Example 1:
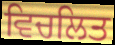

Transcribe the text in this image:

ਵਿਚਲਿਤ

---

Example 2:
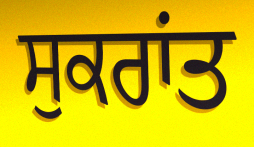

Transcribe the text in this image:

ਸੁਕਰਾਂਤ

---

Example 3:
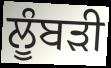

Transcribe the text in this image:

ਲੂੰਬੜੀ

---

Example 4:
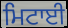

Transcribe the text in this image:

ਮਿਟਾਈ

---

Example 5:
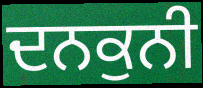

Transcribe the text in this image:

ਦਨਕੁਨੀ